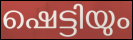
ഷെട്ടിയും